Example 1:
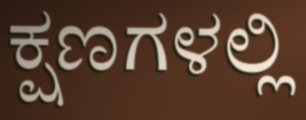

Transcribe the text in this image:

ಕ್ಷಣಗಳಲ್ಲಿ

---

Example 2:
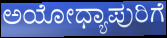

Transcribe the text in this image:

ಅಯೋಧ್ಯಾಪುರಿಗೆ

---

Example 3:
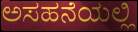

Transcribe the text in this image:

ಅಸಹನೆಯಲ್ಲಿ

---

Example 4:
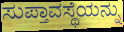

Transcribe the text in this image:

ಸುಪ್ತಾವಸ್ಥೆಯನ್ನು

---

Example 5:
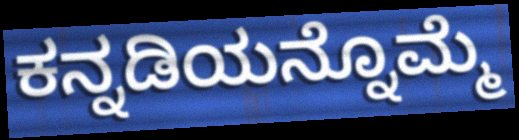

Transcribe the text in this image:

ಕನ್ನಡಿಯನ್ನೊಮ್ಮೆ